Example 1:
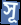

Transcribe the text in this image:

সূ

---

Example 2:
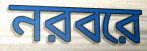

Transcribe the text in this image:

নরবরে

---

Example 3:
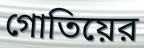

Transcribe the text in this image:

গোতিয়ের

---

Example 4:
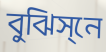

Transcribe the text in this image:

বুঝিস্‌নে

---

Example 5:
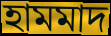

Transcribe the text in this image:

হামমাদ